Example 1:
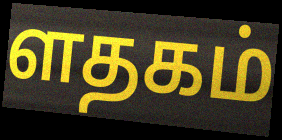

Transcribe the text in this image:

ளதகம்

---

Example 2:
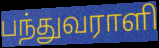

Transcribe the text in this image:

பந்துவராளி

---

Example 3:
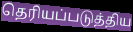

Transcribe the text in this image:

தெரியப்படுத்திய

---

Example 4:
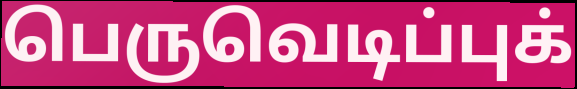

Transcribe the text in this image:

பெருவெடிப்புக்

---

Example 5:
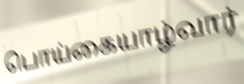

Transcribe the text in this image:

பொய்கையாழ்வார்